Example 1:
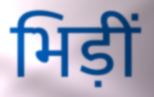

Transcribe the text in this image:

भिड़ीं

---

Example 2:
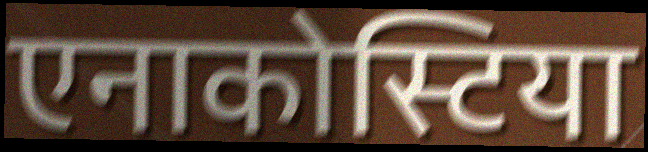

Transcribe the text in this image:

एनाकोस्टिया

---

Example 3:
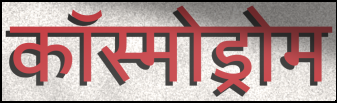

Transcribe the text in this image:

कॉस्मोड्रोम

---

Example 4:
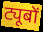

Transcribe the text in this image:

ट्यूबों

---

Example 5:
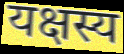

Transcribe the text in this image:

यक्षस्य